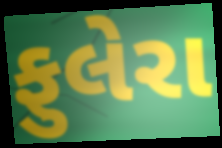
ફુલેરા